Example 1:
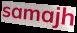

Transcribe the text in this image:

samajh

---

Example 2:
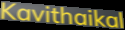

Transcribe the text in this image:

Kavithaikal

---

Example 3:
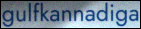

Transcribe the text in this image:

gulfkannadiga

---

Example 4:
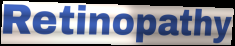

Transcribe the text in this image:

Retinopathy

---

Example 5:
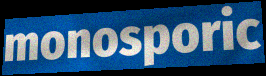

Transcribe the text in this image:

monosporic